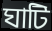
ঘাটি